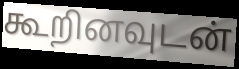
கூறினவுடன்